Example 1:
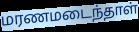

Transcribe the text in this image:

மரணமடைந்தாள்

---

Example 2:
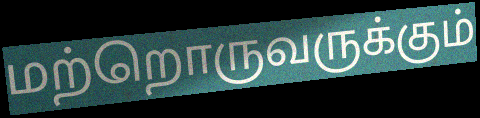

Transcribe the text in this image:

மற்றொருவருக்கும்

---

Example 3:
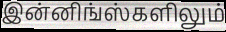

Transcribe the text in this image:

இன்னிங்ஸ்களிலும்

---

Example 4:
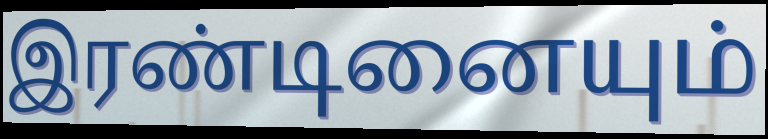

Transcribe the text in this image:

இரண்டினையும்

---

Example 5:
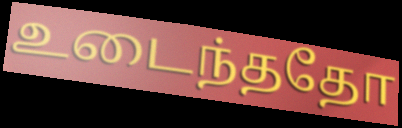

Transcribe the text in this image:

உடைந்ததோ